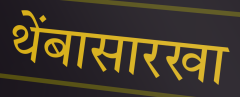
थेंबासारखा